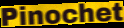
Pinochet